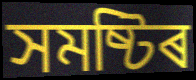
সমষ্টিৰ